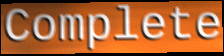
Complete